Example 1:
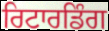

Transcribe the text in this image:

ਰਿਟਾਰਡਿੰਗ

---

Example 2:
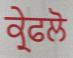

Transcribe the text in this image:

ਕ੍ਰੇਫਲੋ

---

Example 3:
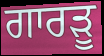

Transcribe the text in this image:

ਗਾਰੜੂ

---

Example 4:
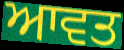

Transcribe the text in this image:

ਆਵਤ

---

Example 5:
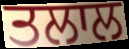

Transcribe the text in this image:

ਤਲਾਲ